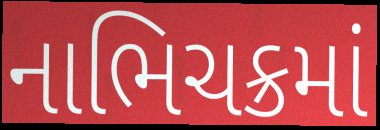
નાભિચક્રમાં